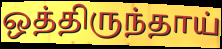
ஒத்திருந்தாய்